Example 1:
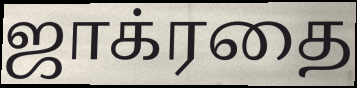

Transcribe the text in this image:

ஜாக்ரதை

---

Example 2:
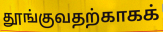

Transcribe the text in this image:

தூங்குவதற்காகக்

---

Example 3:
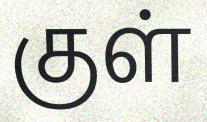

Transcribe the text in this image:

குள்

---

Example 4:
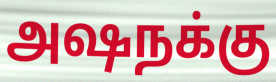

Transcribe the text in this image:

அஷநக்கு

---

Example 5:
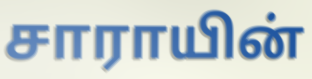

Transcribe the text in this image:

சாராயின்